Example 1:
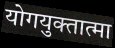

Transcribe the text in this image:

योगयुक्तात्मा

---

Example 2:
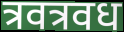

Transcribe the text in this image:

त्रवत्रवध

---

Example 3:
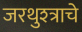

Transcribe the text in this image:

जरथुश्त्राचे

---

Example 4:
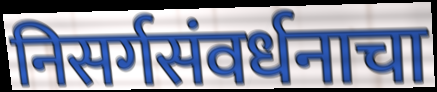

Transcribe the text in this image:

निसर्गसंवर्धनाचा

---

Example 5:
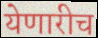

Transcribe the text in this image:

येणारीच